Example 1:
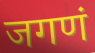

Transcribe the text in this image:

जगणं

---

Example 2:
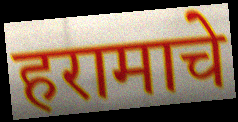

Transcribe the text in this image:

हरामाचे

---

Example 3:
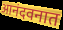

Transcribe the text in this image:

आनंदवनात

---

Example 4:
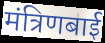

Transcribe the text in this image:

मंत्रिणबाई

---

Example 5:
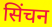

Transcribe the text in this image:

सिंचन